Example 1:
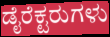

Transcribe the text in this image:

ಡೈರೆಕ್ಟರುಗಳು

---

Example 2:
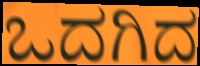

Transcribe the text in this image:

ಒದಗಿದ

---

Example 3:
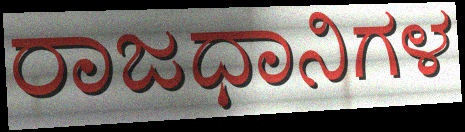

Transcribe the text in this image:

ರಾಜಧಾನಿಗಳ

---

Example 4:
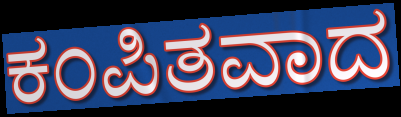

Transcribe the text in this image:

ಕಂಪಿತವಾದ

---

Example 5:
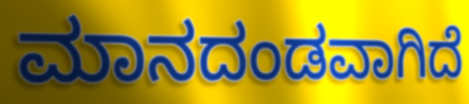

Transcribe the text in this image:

ಮಾನದಂಡವಾಗಿದೆ